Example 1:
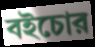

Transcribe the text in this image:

বইচোর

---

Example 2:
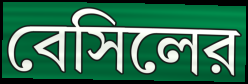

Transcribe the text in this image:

বেসিলের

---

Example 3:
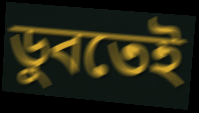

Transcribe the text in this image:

ডুবতেই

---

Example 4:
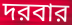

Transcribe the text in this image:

দরবার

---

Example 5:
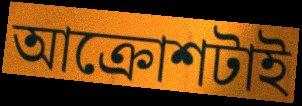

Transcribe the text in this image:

আক্রোশটাই